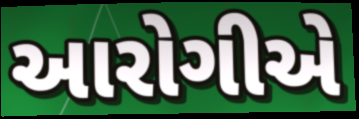
આરોગીએ